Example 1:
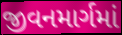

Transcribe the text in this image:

જીવનમાર્ગમાં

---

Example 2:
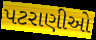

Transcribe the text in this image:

પટરાણીઓ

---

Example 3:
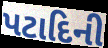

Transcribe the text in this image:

પટાદિની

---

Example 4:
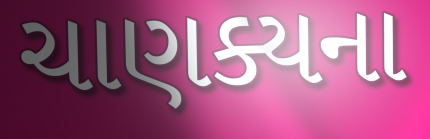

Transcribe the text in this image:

ચાણક્યના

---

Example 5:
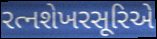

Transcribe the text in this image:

રત્નશેખરસૂરિએ